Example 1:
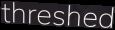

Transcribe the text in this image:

threshed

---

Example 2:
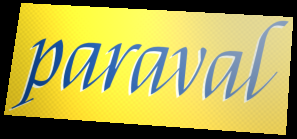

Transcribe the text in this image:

paraval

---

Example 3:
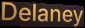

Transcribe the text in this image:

Delaney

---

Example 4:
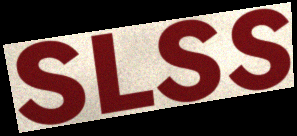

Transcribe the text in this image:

SLSS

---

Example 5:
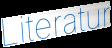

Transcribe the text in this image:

Literatur